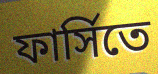
ফার্সিতে